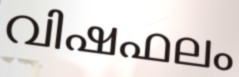
വിഷഫലം